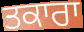
ਤਕਾਰਾ